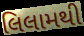
લિલામથી